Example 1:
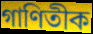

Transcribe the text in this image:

গাণিতীক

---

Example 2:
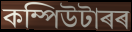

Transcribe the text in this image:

কম্পিউটাৰৰ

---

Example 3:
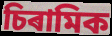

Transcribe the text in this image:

চিৰামিক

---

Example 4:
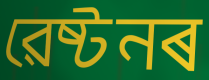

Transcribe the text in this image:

ৱেষ্টনৰ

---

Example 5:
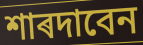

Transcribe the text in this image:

শাৰদাবেন